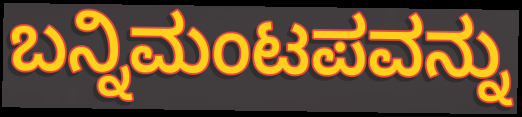
ಬನ್ನಿಮಂಟಪವನ್ನು